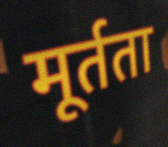
मूर्तता